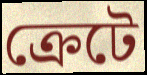
ক্রেটে